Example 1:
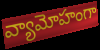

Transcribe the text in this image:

వ్యామోహంగా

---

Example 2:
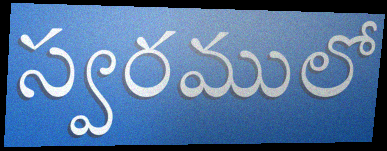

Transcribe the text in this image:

స్వరములో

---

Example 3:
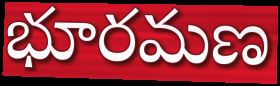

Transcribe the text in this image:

భూరమణ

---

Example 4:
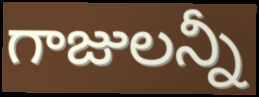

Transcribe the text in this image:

గాజులన్నీ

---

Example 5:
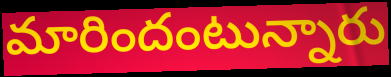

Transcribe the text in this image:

మారిందంటున్నారు